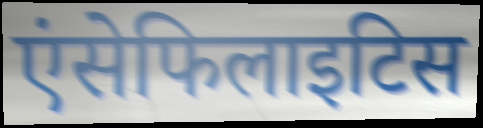
एंसेफिलाइटिस